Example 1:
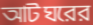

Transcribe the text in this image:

আটঘরের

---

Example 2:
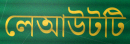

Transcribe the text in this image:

লেআউটটি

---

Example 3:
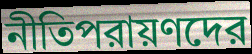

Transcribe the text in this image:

নীতিপরায়ণদের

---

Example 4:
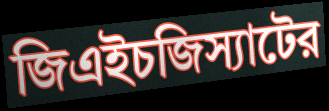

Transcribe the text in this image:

জিএইচজিস্যাটের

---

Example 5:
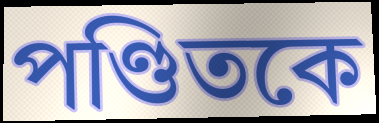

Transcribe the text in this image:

পণ্ডিতকে